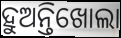
ହୁଅନ୍ତିଖୋଲା